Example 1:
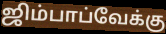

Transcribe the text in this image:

ஜிம்பாப்வேக்கு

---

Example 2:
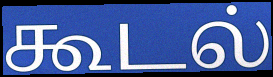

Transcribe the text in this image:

கூடல்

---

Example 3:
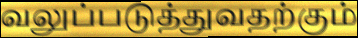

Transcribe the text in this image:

வலுப்படுத்துவதற்கும்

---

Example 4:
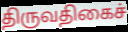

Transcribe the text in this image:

திருவதிகைச்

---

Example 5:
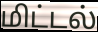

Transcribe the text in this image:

மிட்டல்